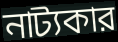
নাট্যকার